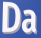
Da